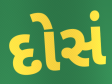
દોસં